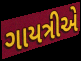
ગાયત્રીએ